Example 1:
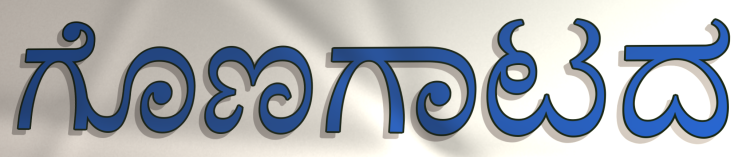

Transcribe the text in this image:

ಗೊಣಗಾಟದ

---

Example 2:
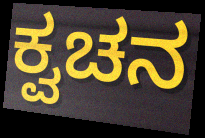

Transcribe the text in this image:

ಕ್ವಚನ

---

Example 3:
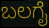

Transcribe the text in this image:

ಬಲಗೈ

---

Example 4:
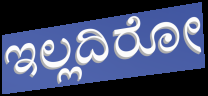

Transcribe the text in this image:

ಇಲ್ಲದಿರೋ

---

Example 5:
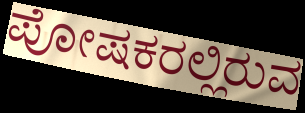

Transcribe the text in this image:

ಪೋಷಕರಲ್ಲಿರುವ